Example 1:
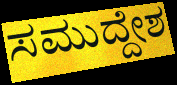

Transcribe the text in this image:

ಸಮುದ್ದೇಶ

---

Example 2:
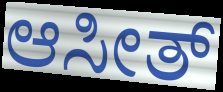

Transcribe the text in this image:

ಆಸೀತ್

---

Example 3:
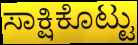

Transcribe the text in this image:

ಸಾಕ್ಷಿಕೊಟ್ಟು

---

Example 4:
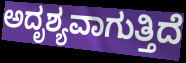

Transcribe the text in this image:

ಅದೃಶ್ಯವಾಗುತ್ತಿದೆ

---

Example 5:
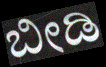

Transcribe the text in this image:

ಬೀಡಿ